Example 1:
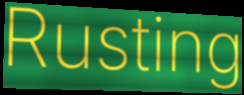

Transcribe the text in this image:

Rusting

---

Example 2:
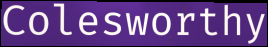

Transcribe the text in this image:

Colesworthy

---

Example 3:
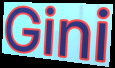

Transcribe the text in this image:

Gini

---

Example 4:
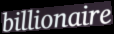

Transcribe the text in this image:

billionaire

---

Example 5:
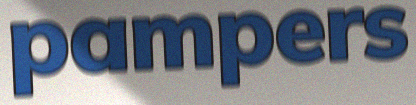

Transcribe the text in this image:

pampers